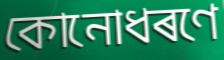
কোনোধৰণে